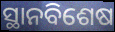
ସ୍ଥାନବିଶେଷ